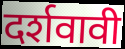
दर्शवावी